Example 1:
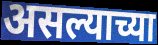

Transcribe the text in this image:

असल्याच्या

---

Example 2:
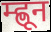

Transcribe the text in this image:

म्ह्णून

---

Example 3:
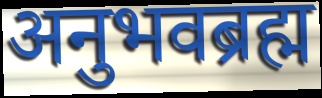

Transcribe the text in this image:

अनुभवब्रह्म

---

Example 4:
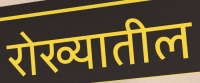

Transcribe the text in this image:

रोख्यातील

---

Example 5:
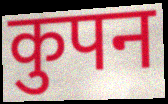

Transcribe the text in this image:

कुपन